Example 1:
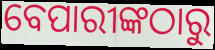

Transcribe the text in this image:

ବେପାରୀଙ୍କଠାରୁ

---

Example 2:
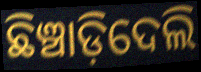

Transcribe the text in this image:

ଛିଞ୍ଚାଡ଼ିଦେଲି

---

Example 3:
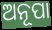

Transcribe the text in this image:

ଅନୂପା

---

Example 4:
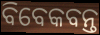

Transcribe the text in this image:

ବିବେକବନ୍ତ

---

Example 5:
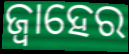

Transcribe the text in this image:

ଜ୍ୱାହେର